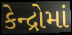
કેન્દ્રોમાં